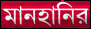
মানহানির